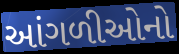
આંગળીઓનો